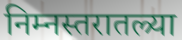
निम्नस्तरातल्या